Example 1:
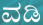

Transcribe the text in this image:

ವಡಿ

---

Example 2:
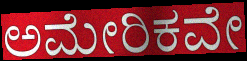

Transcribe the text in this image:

ಅಮೇರಿಕವೇ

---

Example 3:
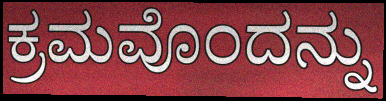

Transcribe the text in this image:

ಕ್ರಮವೊಂದನ್ನು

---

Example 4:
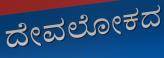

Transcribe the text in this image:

ದೇವಲೋಕದ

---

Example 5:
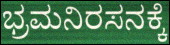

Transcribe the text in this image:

ಭ್ರಮನಿರಸನಕ್ಕೆ